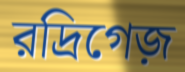
রদ্রিগেজ়